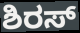
ಶಿರಸ್